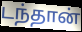
டந்தான்